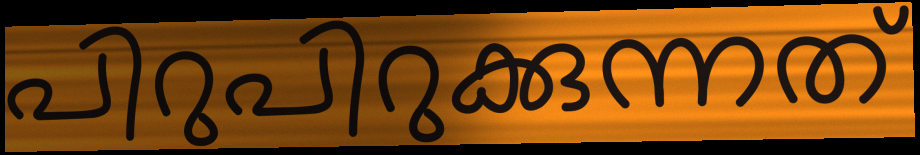
പിറുപിറുക്കുന്നത്